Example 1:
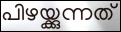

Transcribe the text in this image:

പിഴയ്ക്കുന്നത്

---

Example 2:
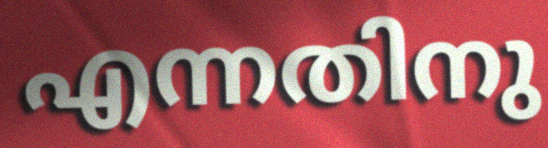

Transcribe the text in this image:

എന്നതിനു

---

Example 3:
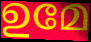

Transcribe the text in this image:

ഉമേ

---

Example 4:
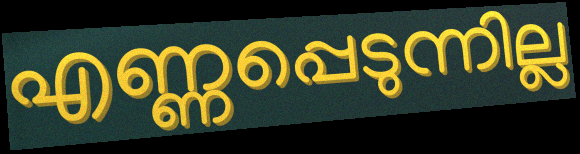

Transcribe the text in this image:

എണ്ണപ്പെടുന്നില്ല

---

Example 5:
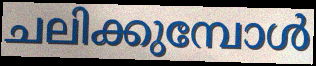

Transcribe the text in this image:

ചലിക്കുമ്പോൾ